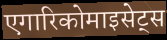
एगारिकोमाइसेट्स